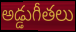
అడ్డుగీతలు